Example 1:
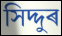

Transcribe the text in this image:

সিদ্দুৰ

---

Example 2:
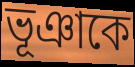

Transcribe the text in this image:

ভূঞাকে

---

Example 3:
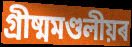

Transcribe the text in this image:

গ্ৰীষ্মমণ্ডলীয়ৰ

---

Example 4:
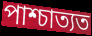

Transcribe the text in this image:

পাশ্চাত্যত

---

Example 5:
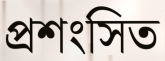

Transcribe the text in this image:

প্ৰশংসিত